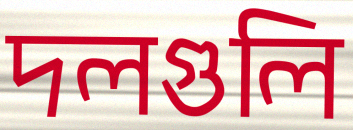
দলগুলি